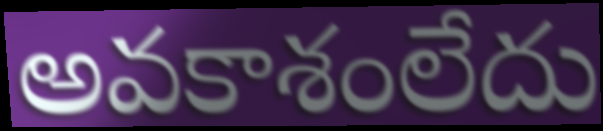
అవకాశంలేదు